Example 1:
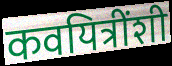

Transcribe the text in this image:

कवयित्रींशी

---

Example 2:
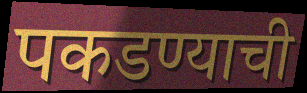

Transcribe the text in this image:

पकडण्याची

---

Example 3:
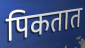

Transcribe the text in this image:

पिकतात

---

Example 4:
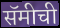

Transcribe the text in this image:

सॅमीची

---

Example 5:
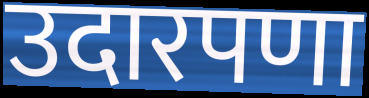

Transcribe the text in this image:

उदारपणा